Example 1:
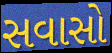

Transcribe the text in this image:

સવાસો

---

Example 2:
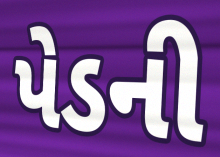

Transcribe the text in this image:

પેડની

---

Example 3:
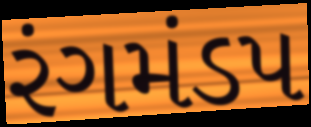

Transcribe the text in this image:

રંગમંડપ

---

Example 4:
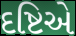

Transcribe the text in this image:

દષ્ટિએ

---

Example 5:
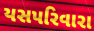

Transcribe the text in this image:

યસપરિવારા